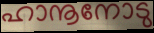
ഹാനൂനോടു